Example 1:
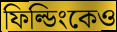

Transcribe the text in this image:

ফিল্ডিংকেও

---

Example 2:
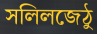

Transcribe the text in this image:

সলিলজেঠু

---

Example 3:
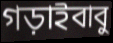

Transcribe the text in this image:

গড়াইবাবু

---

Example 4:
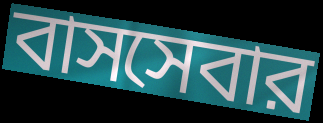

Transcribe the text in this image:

বাসসেবার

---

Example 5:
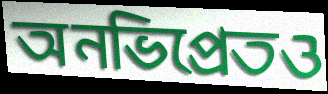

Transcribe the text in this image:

অনভিপ্রেতও